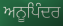
ਅਨੂਪਿੰਦਰ